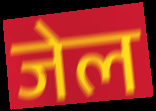
जेल